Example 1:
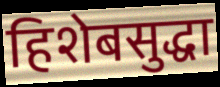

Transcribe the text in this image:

हिशेबसुद्धा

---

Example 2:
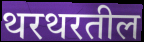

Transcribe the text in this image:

थरथरतील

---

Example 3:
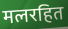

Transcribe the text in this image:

मलरहित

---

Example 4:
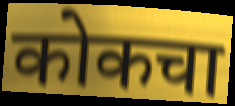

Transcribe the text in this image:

कोकचा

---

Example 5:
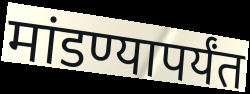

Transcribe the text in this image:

मांडण्यापर्यंत